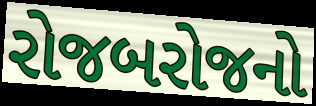
રોજબરોજનો